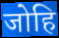
जोहि